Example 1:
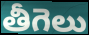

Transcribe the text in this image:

తీగెలు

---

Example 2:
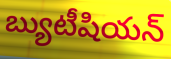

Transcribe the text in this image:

బ్యుటీషియన్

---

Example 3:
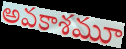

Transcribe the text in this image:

అవకాశమూ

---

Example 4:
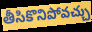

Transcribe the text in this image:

తీసికొనిపోవచ్చు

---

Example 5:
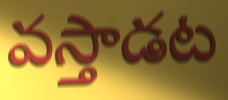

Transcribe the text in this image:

వస్తాడట